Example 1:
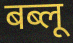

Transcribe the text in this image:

बब्लू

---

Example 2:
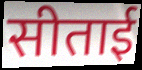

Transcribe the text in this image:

सीताई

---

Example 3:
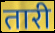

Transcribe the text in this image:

तारी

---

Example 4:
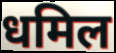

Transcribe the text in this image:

धमिल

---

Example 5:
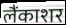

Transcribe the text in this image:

लैंकाशर